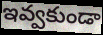
ఇవ్వకుండా